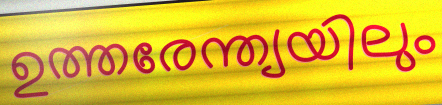
ഉത്തരേന്ത്യയിലും